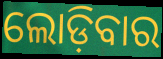
ଲୋଡ଼ିବାର